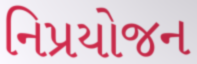
નિપ્રયોજન